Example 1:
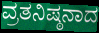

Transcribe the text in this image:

ವ್ರತನಿಷ್ಠನಾದ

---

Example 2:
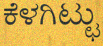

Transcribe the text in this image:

ಕೆಳಗಿಟ್ಟು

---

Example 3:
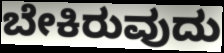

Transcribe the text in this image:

ಬೇಕಿರುವುದು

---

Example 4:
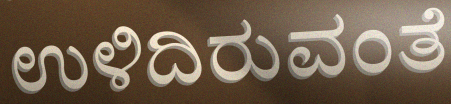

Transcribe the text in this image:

ಉಳಿದಿರುವಂತೆ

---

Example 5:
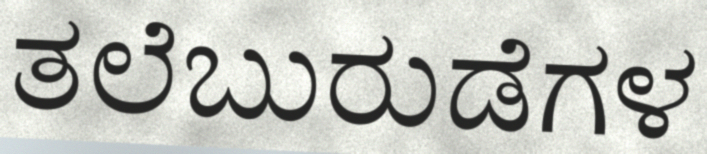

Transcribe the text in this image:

ತಲೆಬುರುಡೆಗಳ